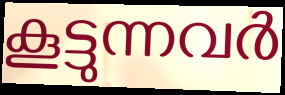
കൂട്ടുന്നവർ